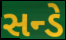
સન્ડે